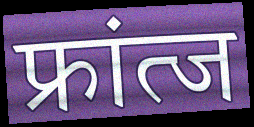
फ्रांत्ज